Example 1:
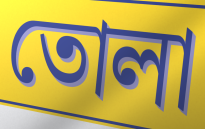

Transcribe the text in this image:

তোলা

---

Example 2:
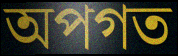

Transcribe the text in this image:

অপগত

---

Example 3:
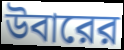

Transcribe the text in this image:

উবারের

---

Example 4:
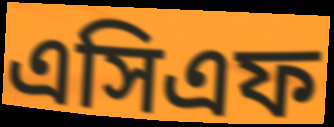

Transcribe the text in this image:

এসিএফ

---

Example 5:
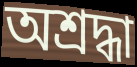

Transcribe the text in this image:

অশ্রদ্ধা